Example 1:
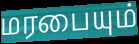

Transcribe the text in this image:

மரபையும்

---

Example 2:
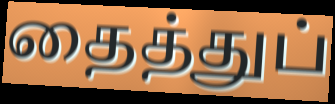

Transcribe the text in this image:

தைத்துப்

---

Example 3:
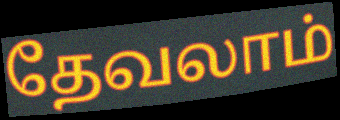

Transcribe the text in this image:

தேவலாம்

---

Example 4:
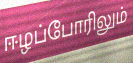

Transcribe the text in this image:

ஈழப்போரிலும்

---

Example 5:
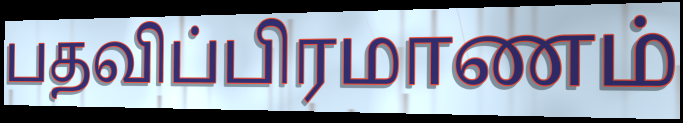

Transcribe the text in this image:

பதவிப்பிரமாணம்